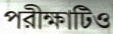
পরীক্ষাটিও